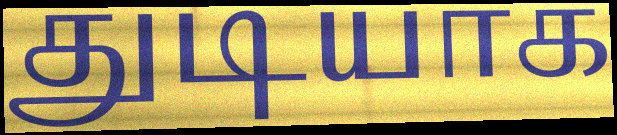
துடியாக